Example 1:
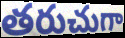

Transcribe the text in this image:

తరుచుగా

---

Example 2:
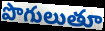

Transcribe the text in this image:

పొగులుతూ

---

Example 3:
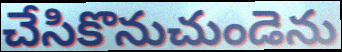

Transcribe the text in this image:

చేసికొనుచుండెను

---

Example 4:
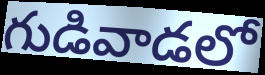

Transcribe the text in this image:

గుడివాడలో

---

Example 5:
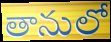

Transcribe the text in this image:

తానులో